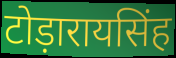
टोड़ारायसिंह